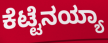
ಕೆಟ್ಟೆನಯ್ಯಾ